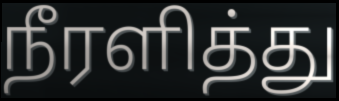
நீரளித்து